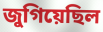
জুগিয়েছিল